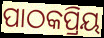
ପାଠକପ୍ରିୟ